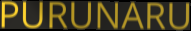
PURUNARU